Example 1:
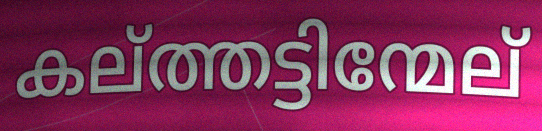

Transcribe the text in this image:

കല്ത്തട്ടിന്മേല്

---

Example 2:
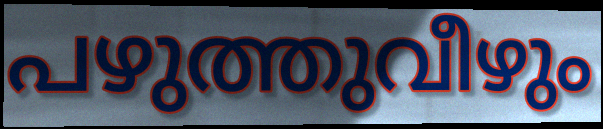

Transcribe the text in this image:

പഴുത്തുവീഴും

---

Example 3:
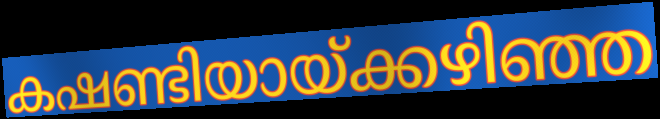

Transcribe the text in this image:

കഷണ്ടിയായ്ക്കഴിഞ്ഞ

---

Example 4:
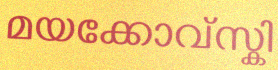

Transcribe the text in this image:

മയക്കോവ്സ്കി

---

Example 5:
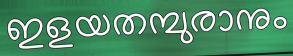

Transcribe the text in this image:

ഇളയതമ്പുരാനും